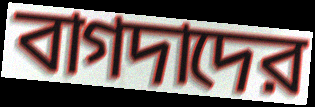
বাগদাদের